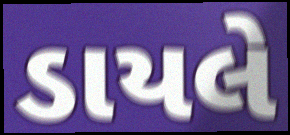
ડાયલે